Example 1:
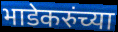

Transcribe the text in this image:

भाडेकरुंच्या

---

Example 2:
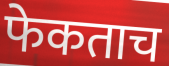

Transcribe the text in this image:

फेकताच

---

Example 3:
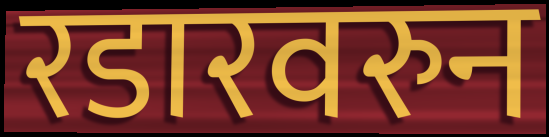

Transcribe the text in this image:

रडारवरुन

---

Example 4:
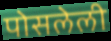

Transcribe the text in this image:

पोसलेली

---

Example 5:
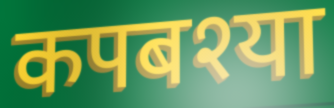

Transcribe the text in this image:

कपबश्या